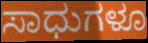
ಸಾಧುಗಳೂ